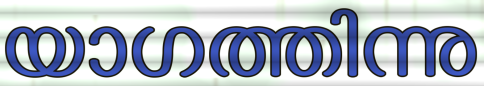
യാഗത്തിന്നു